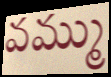
వమ్ము